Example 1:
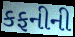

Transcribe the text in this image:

કફનીની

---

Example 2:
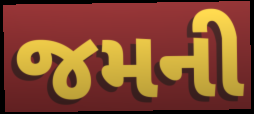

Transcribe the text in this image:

જમની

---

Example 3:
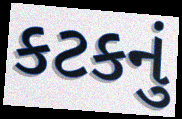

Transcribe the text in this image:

કટકનું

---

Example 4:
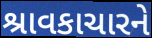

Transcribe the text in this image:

શ્રાવકાચારને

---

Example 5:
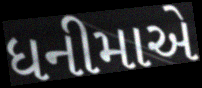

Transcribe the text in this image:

ધનીમાએ